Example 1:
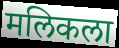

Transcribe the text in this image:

मलिकला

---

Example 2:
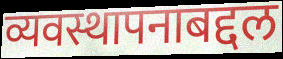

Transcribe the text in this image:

व्यवस्थापनाबद्दल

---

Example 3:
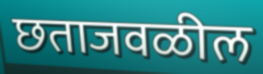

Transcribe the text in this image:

छताजवळील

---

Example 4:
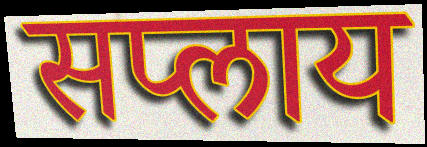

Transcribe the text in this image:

सप्लाय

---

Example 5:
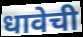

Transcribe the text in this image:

धावेची